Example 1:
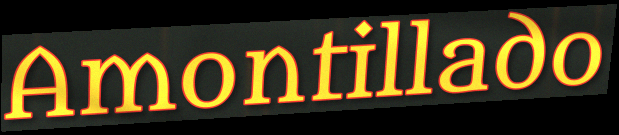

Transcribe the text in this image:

Amontillado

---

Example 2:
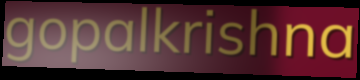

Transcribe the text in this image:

gopalkrishna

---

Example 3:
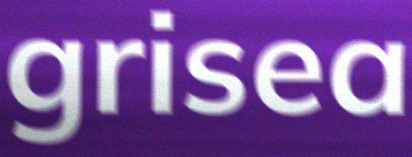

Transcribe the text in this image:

grisea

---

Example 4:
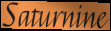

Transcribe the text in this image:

Saturnine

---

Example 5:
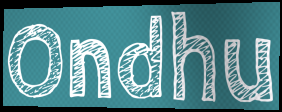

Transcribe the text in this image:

Ondhu